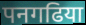
पनगढिया